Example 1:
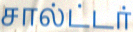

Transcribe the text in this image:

சால்ட்டர்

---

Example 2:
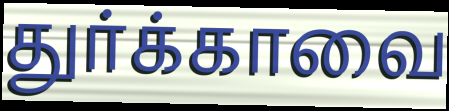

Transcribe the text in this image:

துர்க்காவை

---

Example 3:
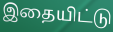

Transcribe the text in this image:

இதையிட்டு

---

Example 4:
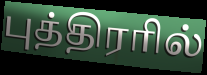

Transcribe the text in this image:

புத்திரரில்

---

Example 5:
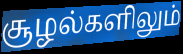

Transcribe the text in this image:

சூழல்களிலும்